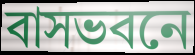
বাসভবনে